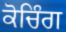
ਕੋਚਿੰਗ